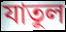
যাতুল